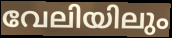
വേലിയിലും